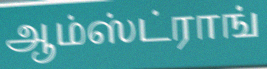
ஆம்ஸ்ட்ராங்